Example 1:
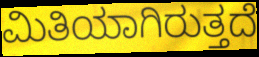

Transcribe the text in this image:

ಮಿತಿಯಾಗಿರುತ್ತದೆ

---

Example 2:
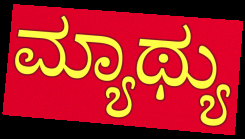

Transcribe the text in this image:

ಮ್ಯಾಥ್ಯು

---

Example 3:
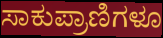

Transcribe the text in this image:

ಸಾಕುಪ್ರಾಣಿಗಳೂ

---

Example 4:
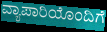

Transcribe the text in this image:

ವ್ಯಾಪಾರಿಯೊಂದಿಗೆ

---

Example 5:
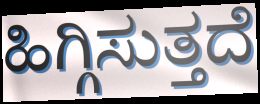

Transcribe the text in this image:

ಹಿಗ್ಗಿಸುತ್ತದೆ